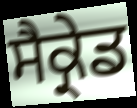
ਸੈਕ੍ਰੇਡ